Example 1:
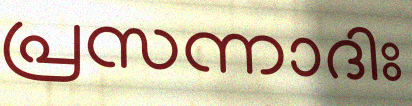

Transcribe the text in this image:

പ്രസന്നാദിഃ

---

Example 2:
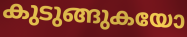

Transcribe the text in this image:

കുടുങ്ങുകയോ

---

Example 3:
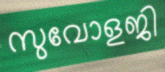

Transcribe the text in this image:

സുവോളജി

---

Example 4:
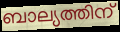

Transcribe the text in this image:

ബാല്യത്തിന്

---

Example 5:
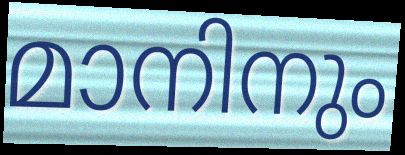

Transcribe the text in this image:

മാനിനും